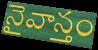
నైవాన్తం